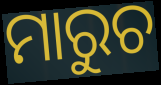
ମାରୁଚ